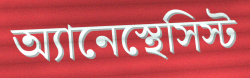
অ্যানেস্থেসিস্ট